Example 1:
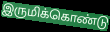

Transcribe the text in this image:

இருமிக்கொண்டு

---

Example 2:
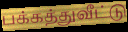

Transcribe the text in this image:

பக்கத்துவீட்டு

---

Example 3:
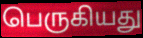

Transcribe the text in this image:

பெருகியது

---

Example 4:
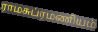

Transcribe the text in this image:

ராமசுப்ரமணியம்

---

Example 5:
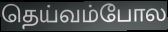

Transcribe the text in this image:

தெய்வம்போல